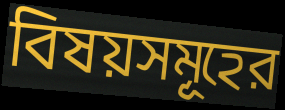
বিষয়সমূহের